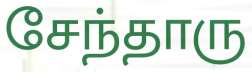
சேந்தாரு